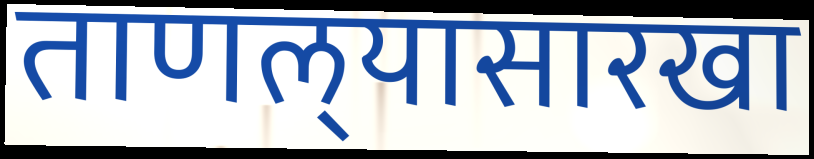
ताणल्यासारखा